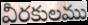
వీరకులము